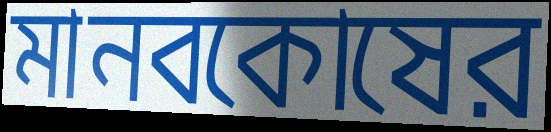
মানবকোষের